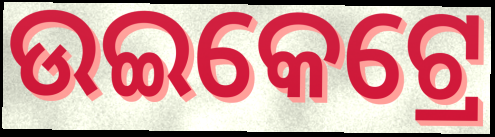
ଉଇକେଟ୍ରେ